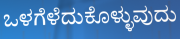
ಒಳಗೆಳೆದುಕೊಳ್ಳುವುದು